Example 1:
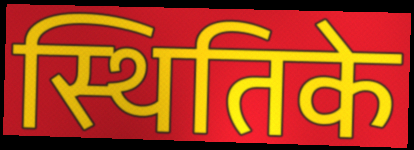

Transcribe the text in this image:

स्थितिके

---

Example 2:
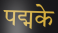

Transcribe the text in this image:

पद्मके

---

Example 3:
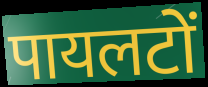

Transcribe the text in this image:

पायलटों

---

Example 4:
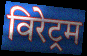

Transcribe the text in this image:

विरेट्रम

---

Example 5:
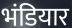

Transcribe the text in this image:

भंडियार